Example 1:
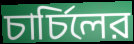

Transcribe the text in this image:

চার্চিলের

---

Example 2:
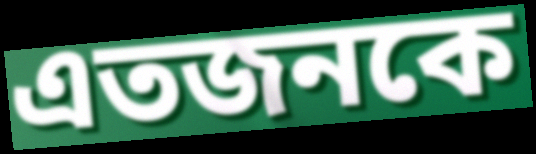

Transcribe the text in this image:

এতজনকে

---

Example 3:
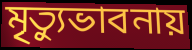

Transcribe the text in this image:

মৃত্যুভাবনায়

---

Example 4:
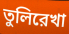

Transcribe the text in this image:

তুলিরেখা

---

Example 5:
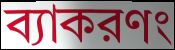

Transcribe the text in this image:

ব্যাকরণং